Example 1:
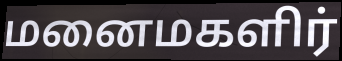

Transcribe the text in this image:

மனைமகளிர்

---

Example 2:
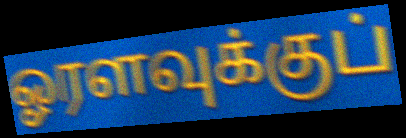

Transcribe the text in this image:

ஓரளவுக்குப்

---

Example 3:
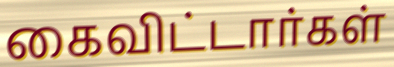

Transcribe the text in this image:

கைவிட்டார்கள்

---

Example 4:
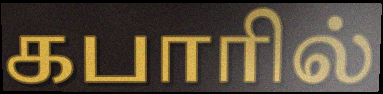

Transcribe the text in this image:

கபாரில்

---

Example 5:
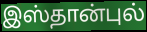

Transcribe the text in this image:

இஸ்தான்புல்